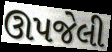
ઊપજેલી